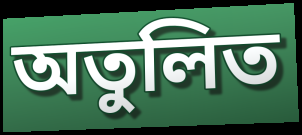
অতুলিত